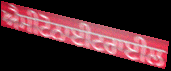
ਐਸੀਟੋਨਾਈਟਰਾਈਲ